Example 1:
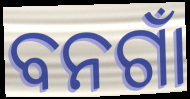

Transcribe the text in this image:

ବନଗାଁ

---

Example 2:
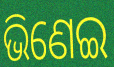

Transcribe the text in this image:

ଭିଣେଇ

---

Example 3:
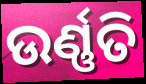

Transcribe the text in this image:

ଉର୍ଣ୍ଣତି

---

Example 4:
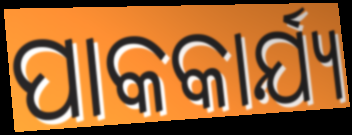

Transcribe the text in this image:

ପାକକାର୍ଯ୍ୟ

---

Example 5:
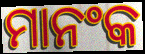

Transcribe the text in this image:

ମାନଂକ